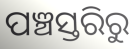
ପଞ୍ଚସ୍ତରିରୁ